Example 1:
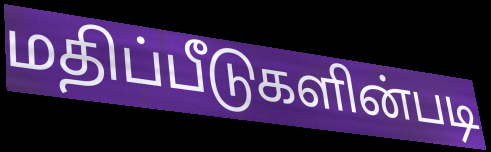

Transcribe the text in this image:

மதிப்பீடுகளின்படி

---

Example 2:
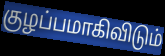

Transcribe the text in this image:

குழப்பமாகிவிடும்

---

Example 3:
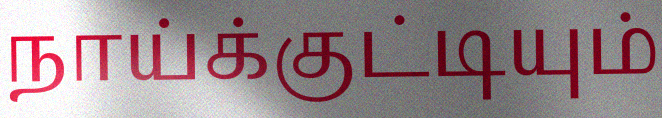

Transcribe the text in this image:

நாய்க்குட்டியும்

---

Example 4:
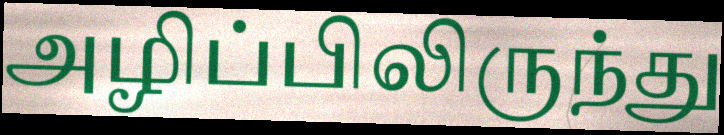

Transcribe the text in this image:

அழிப்பிலிருந்து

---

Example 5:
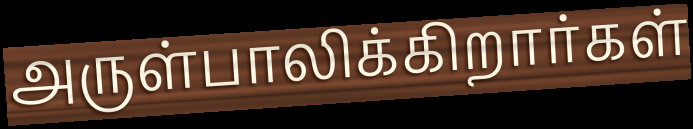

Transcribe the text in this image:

அருள்பாலிக்கிறார்கள்